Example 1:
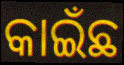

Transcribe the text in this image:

କାଇଁଛ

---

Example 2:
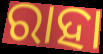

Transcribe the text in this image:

ରାହା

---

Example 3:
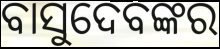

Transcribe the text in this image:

ବାସୁଦେବଙ୍କର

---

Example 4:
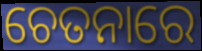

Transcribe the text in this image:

ଚେତନାରେ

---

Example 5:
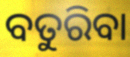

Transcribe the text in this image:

ବତୁରିବା